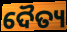
ଦୈତ୍ୟ